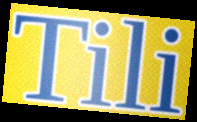
Tili